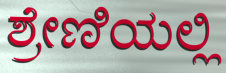
ಶ್ರೇಣಿಯಲ್ಲಿ